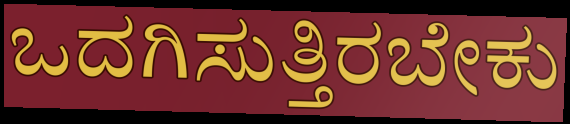
ಒದಗಿಸುತ್ತಿರಬೇಕು